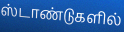
ஸ்டாண்டுகளில்